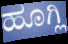
ಹೂಗ್ಲಿ